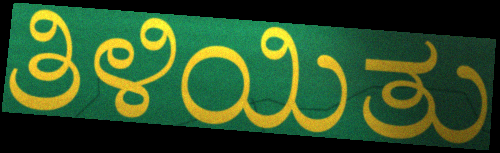
ತಿಳಿಯಿತು